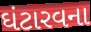
ઘંટારવના